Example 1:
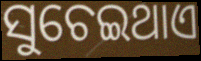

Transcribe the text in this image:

ସୁଚେଇଥାଏ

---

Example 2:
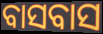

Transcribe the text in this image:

ବାସବାସ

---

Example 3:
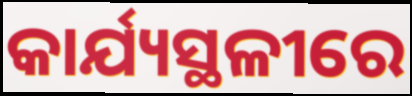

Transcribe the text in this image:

କାର୍ଯ୍ୟସ୍ଥଳୀରେ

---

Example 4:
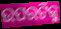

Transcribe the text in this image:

ଉପରଟିକୁ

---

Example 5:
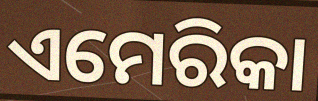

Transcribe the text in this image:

ଏମେରିକା